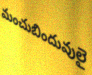
మంచుబిందువులై